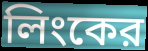
লিংকের